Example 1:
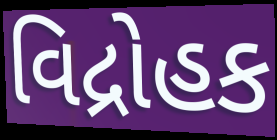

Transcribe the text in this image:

વિદ્રોહક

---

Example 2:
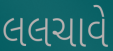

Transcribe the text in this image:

લલચાવે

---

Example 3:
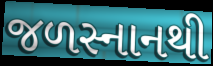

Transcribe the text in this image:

જળસ્નાનથી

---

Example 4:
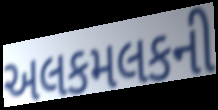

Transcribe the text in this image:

અલકમલકની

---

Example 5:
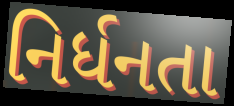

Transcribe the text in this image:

નિર્ધનતા